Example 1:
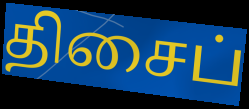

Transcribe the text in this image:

திசைப்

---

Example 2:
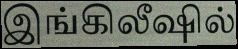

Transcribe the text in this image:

இங்கிலீஷில்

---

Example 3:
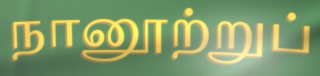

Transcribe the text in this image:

நானூற்றுப்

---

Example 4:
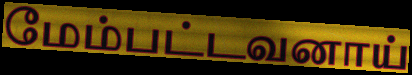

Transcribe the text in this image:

மேம்பட்டவனாய்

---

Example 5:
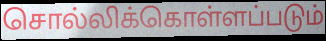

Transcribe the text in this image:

சொல்லிக்கொள்ளப்படும்